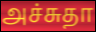
அச்சுதா